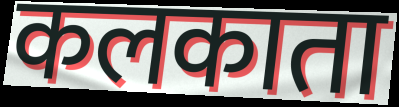
कलकाता